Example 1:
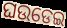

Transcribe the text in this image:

ଘଉଡେଇ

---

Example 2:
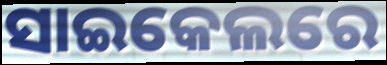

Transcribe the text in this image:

ସାଇକେଲରେ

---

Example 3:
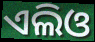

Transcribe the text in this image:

ଏଲିଓ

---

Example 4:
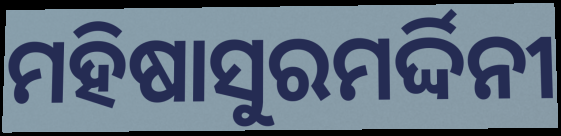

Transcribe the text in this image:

ମହିଷାସୁରମର୍ଦ୍ଦିନୀ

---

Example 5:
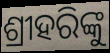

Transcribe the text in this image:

ଶ୍ରୀହରିଙ୍କୁ